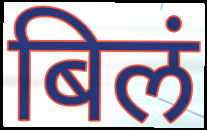
बिलं